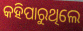
କହିପାରୁଥିଲେ